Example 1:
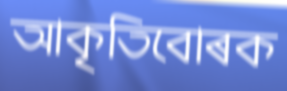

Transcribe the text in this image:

আকৃতিবোৰক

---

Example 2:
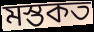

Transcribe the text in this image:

মস্তকত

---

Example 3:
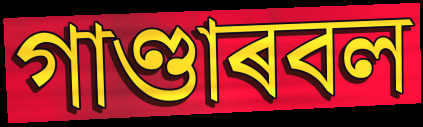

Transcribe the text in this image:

গাণ্ডাৰবল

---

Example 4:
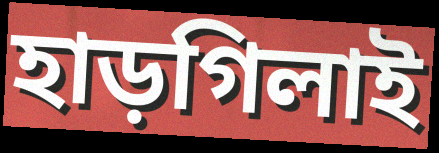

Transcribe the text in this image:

হাড়গিলাই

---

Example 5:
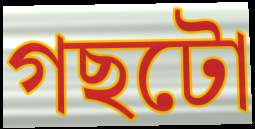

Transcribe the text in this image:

গছটো